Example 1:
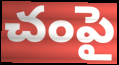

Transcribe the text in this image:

చంపై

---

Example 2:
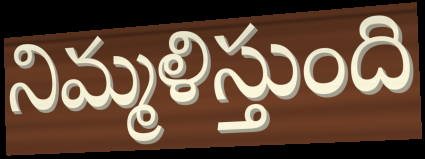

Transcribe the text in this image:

నిమ్మళిస్తుంది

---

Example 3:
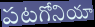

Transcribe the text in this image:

పటగోనియా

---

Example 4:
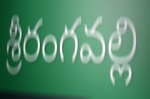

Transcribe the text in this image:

శ్రీరంగవల్లి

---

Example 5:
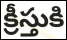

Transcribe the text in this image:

క్రీస్తుకి